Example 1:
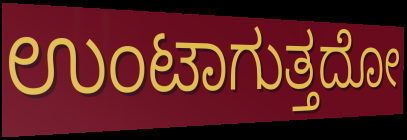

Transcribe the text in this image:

ಉಂಟಾಗುತ್ತದೋ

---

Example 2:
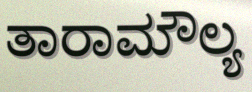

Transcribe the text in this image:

ತಾರಾಮೌಲ್ಯ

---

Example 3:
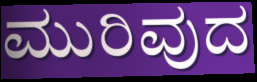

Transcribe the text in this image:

ಮುರಿವುದ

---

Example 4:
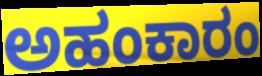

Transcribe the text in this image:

ಅಹಂಕಾರಂ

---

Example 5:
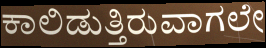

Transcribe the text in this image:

ಕಾಲಿಡುತ್ತಿರುವಾಗಲೇ